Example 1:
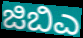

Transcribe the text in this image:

ಜಿಬಿಎ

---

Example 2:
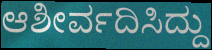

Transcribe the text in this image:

ಆಶೀರ್ವದಿಸಿದ್ದು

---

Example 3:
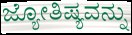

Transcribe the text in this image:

ಜ್ಯೋತಿಷ್ಯವನ್ನು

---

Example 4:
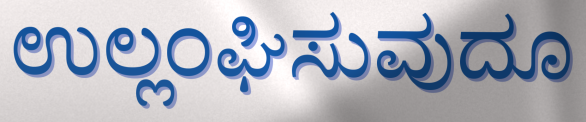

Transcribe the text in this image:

ಉಲ್ಲಂಘಿಸುವುದೂ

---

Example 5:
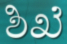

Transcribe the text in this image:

ಶಿಖೆ